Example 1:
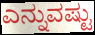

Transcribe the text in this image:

ಎನ್ನುವಷ್ಟು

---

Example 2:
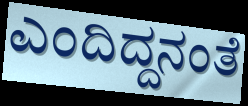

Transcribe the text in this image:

ಎಂದಿದ್ದನಂತೆ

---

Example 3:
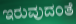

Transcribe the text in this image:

ಇರುವುದಂತೆ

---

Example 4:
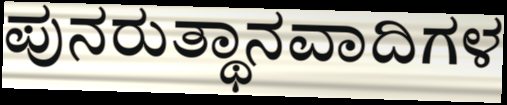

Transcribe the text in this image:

ಪುನರುತ್ಥಾನವಾದಿಗಳ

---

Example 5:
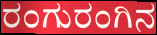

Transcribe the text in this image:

ರಂಗುರಂಗಿನ